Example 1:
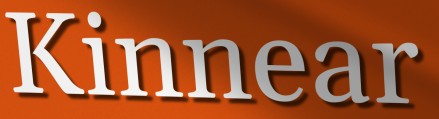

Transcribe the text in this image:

Kinnear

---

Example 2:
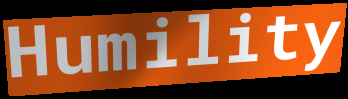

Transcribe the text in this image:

Humility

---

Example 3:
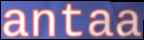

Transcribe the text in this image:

antaa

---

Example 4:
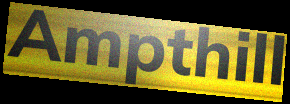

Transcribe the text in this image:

Ampthill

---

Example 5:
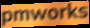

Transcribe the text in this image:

pmworks